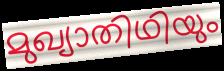
മുഖ്യാതിഥിയും